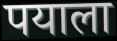
पयाला